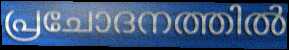
പ്രചോദനത്തിൽ